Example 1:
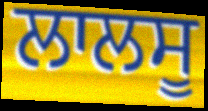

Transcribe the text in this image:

ਲਾਲਸੂ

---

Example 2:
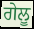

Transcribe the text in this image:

ਗੇਲੂ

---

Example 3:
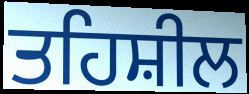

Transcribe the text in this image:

ਤਹਿਸ਼ੀਲ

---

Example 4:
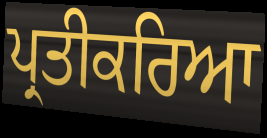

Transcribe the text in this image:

ਪ੍ਰਤੀਕਰਿਆ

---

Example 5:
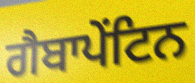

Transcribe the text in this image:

ਗੈਬਾਪੇਂਟਿਨ